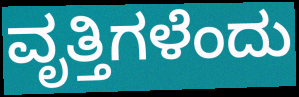
ವೃತ್ತಿಗಳೆಂದು